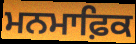
ਮਨਮਾਫ਼ਿਕ